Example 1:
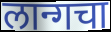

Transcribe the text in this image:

लान्गचा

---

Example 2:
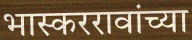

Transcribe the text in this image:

भास्कररावांच्या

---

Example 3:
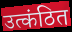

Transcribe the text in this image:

उत्कंठित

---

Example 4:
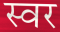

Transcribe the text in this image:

स्वर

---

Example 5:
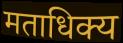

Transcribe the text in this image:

मताधिक्य